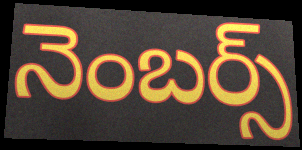
నెంబర్స్